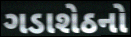
ગડાશેઠનો